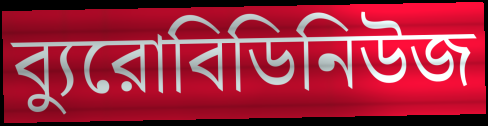
ব্যুরোবিডিনিউজ